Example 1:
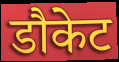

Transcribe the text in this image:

डौकेट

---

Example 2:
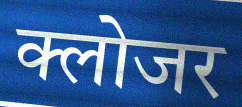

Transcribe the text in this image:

क्लोजर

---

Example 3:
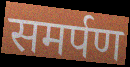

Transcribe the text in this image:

समर्पण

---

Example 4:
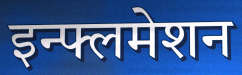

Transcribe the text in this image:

इन्फ्लमेशन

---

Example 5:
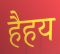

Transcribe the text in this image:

हैहय